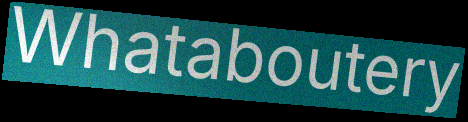
Whataboutery